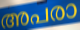
അപരാ